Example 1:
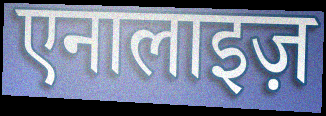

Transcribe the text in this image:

एनालाइज़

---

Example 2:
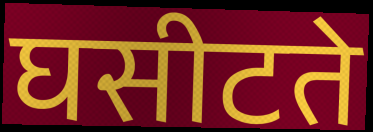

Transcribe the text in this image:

घसीटते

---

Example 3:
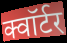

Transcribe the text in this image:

क्‍वॉर्टर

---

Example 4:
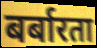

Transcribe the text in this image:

बर्बारता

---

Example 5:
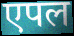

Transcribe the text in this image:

एपल